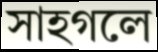
সাহগলে